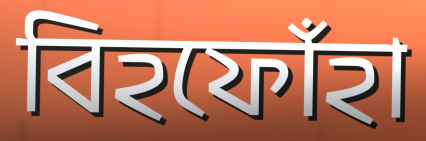
বিহফোঁহা